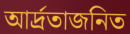
আর্দ্রতাজনিত